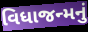
વિધાજન્મનું